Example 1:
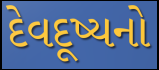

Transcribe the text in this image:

દેવદૂષ્યનો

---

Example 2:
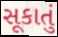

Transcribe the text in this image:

સૂકાતું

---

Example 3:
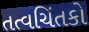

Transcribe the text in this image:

તત્વચિંતકો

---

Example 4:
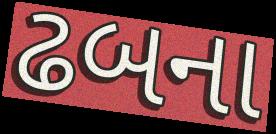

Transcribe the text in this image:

ઢબના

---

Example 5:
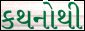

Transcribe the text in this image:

કથનોથી